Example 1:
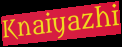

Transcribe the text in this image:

Knaiyazhi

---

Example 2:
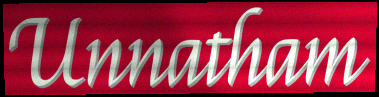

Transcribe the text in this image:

Unnatham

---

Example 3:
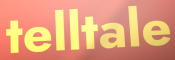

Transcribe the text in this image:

telltale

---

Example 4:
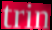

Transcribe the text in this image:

trin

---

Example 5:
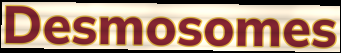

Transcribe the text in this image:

Desmosomes